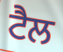
ਟੈਲ